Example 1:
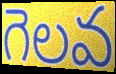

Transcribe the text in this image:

గెలవ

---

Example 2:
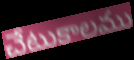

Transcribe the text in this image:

చేటుకాలము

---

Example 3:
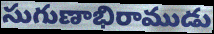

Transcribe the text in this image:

సుగుణాభిరాముడు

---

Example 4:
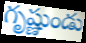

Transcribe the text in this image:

గృష్ణుండు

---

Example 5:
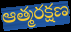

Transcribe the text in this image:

ఆత్మరక్షణ